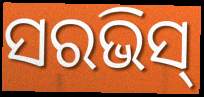
ସରଭିସ୍